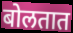
बोलतात